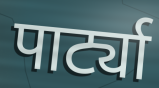
पार्ट्या